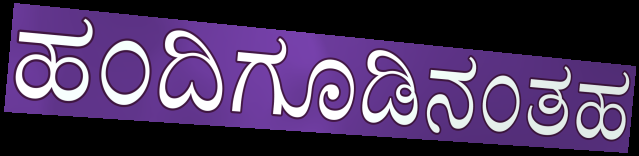
ಹಂದಿಗೂಡಿನಂತಹ